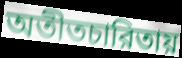
অতীতচারিতায়